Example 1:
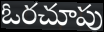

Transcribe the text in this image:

ఓరచూపు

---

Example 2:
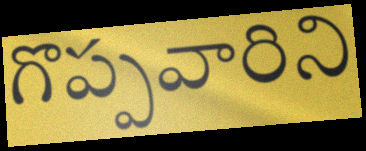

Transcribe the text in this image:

గొప్పవారిని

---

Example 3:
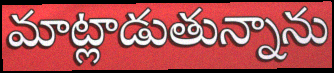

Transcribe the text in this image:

మాట్లాడుతున్నాను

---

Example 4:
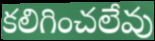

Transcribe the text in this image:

కలిగించలేవు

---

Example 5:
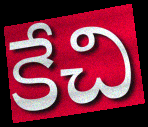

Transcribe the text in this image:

కేచి